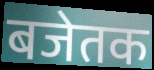
बजेतक